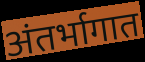
अंतर्भागात